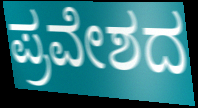
ಪ್ರವೇಶದ